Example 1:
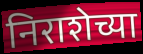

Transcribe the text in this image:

निराशेच्या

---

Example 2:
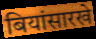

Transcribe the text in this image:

बियांसारखे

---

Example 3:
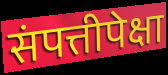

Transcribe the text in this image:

संपत्तीपेक्षा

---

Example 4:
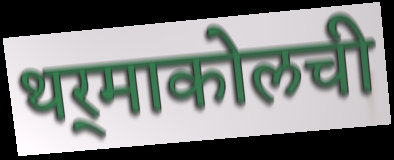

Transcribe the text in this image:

थर्माकोलची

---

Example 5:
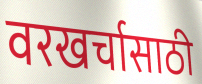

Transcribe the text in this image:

वरखर्चासाठी